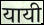
यायी